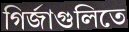
গির্জাগুলিতে